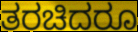
ತರಚಿದರೂ